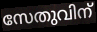
സേതുവിന്